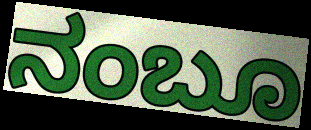
ನಂಬೂ